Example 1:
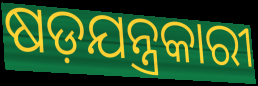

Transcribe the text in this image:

ଷଡ଼ଯନ୍ତ୍ରକାରୀ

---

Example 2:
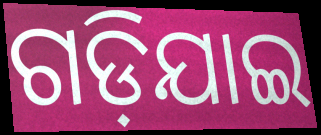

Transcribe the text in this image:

ଗଡ଼ିଯାଇ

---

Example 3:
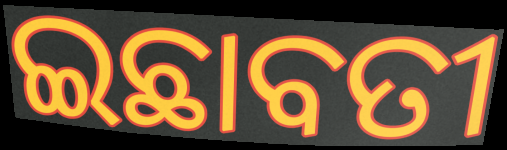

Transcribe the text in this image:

ଇଛାବତୀ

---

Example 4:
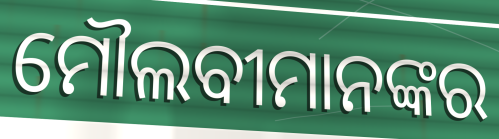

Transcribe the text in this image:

ମୌଲବୀମାନଙ୍କର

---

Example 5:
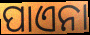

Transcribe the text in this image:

ପାଏନା